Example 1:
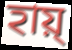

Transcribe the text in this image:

হায়্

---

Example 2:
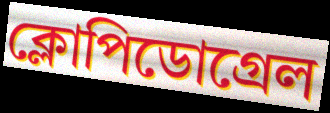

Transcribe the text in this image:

ক্লোপিডোগ্রেল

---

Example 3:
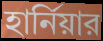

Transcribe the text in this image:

হার্নিয়ার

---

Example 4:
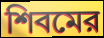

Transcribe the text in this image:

শিবমের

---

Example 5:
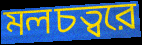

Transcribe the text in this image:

মলচত্বরে